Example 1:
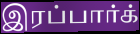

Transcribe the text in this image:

இரப்பார்க்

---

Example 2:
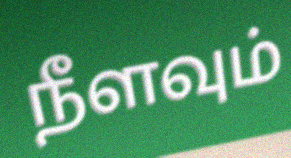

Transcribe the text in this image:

நீளவும்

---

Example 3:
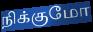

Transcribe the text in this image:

நிக்குமோ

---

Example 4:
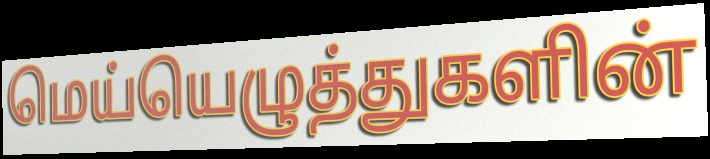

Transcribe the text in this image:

மெய்யெழுத்துகளின்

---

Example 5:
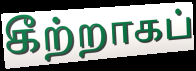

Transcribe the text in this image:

கீற்றாகப்